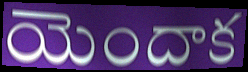
యెందాక